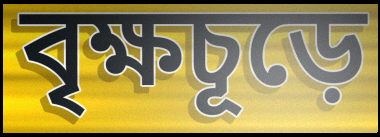
বৃক্ষচূড়ে